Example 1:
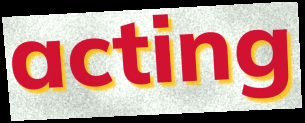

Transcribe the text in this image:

acting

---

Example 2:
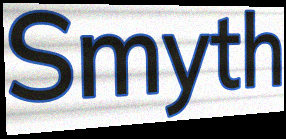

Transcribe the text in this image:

Smyth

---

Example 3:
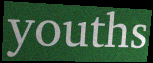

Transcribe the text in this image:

youths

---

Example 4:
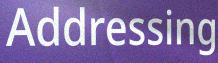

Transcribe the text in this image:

Addressing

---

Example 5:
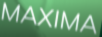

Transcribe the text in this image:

MAXIMA